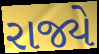
રાજ્યે